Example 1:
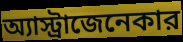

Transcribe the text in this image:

অ্যাস্ট্রাজেনেকার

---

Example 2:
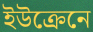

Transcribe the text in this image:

ইউক্রেনে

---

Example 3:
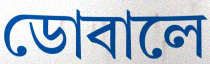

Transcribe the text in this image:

ডোবালে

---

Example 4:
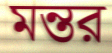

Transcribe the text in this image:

মন্তর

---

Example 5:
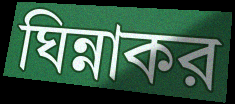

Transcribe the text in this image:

ঘিন্নাকর